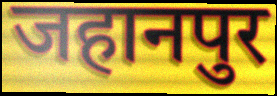
जहानपुर